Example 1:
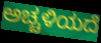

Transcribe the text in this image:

ಅಚ್ಚಳಿಯದೆ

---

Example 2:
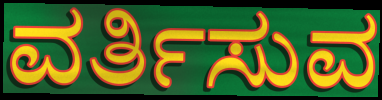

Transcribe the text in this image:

ವರ್ತಿಸುವ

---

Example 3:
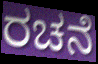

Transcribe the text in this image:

ರಚನೆ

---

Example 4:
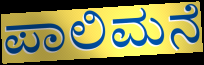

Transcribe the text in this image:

ಪಾಲಿಮನೆ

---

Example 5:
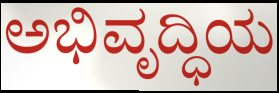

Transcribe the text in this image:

ಅಭಿವೃದ್ಧಿಯ